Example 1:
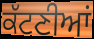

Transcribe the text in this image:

ਕੱਟਣੀਆਂ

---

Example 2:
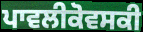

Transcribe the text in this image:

ਪਾਵਲੀਕੋਵਸਕੀ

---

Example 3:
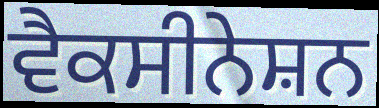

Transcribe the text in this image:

ਵੈਕਸੀਨੇਸ਼ਨ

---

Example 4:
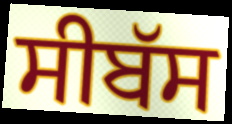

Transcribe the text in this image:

ਸੀਬੱਸ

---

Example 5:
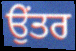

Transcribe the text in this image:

ਉਂਤਰ